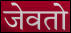
जेवतो